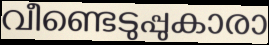
വീണ്ടെടുപ്പുകാരാ